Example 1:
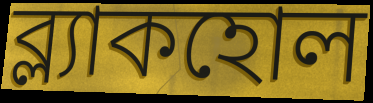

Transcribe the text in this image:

ব্ল্যাকহোল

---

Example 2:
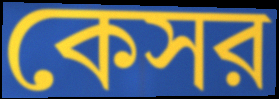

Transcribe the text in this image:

কেসর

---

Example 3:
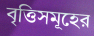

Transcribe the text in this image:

বৃত্তিসমূহের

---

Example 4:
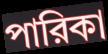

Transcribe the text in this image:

পারিকা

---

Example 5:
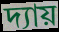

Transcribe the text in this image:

দ্যায়